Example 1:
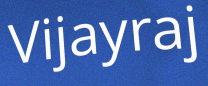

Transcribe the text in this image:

Vijayraj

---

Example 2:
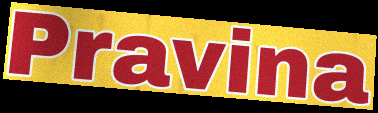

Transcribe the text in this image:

Pravina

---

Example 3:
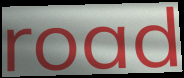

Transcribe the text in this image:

road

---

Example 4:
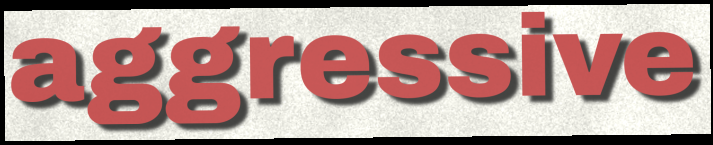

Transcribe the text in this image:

aggressive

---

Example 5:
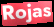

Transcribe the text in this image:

Rojas